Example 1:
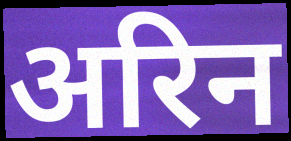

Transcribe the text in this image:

अरिन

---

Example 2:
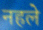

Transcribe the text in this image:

नहले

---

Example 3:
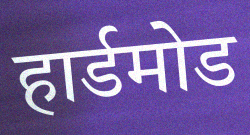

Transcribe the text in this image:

हार्डमोड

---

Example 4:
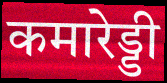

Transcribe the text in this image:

कमारेड्डी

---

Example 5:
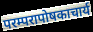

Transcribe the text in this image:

परम्परापोषकाचार्य